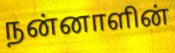
நன்னாளின்